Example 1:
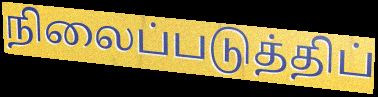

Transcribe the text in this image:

நிலைப்படுத்திப்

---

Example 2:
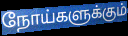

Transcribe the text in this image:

நோய்களுக்கும்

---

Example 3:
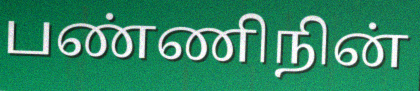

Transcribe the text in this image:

பண்ணிநின்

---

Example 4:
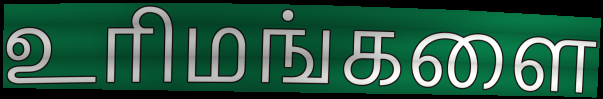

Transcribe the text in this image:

உரிமங்களை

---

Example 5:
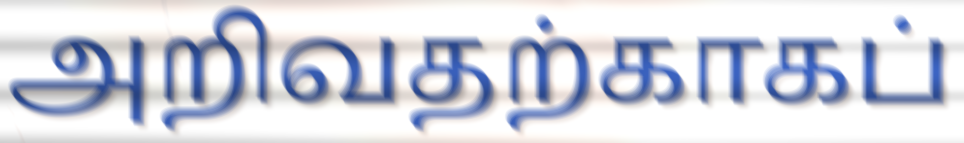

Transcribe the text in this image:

அறிவதற்காகப்